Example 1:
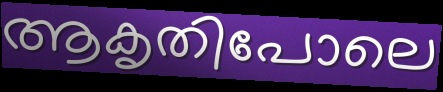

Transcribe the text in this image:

ആകൃതിപോലെ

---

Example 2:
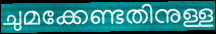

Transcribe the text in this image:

ചുമക്കേണ്ടതിനുള്ള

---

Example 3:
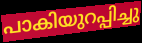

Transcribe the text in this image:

പാകിയുറപ്പിച്ചു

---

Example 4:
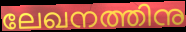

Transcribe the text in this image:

ലേഖനത്തിനു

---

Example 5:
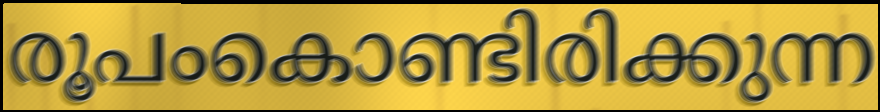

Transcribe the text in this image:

രൂപംകൊണ്ടിരിക്കുന്ന